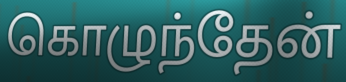
கொழுந்தேன்